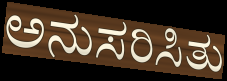
ಅನುಸರಿಸಿತು